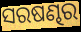
ସରଷଣ୍ଢର